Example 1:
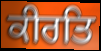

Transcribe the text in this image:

ਕੀਰਤਿ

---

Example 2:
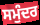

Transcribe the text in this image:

ਸਮੁੰਦਰ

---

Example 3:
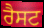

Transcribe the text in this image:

ਰੈਸਟ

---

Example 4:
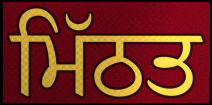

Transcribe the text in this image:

ਮਿੱਠਤ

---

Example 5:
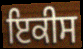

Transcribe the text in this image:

ਇਕੀਸ